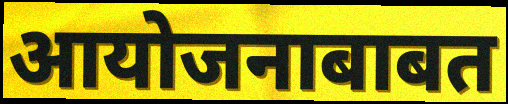
आयोजनाबाबत